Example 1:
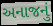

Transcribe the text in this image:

અનાજનું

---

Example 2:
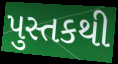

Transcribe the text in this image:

પુસ્તકથી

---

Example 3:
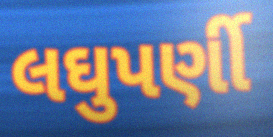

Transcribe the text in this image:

લઘુપર્ણી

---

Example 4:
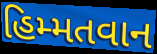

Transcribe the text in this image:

હિમ્મતવાન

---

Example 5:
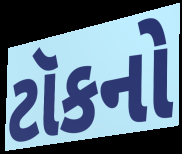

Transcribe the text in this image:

ટૉકનો